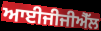
ਆਈਜੀਜੀਐੱਲ